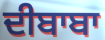
ਦੀਬਾਬਾ